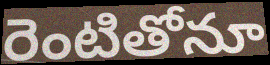
రెంటితోనూ